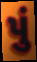
પું